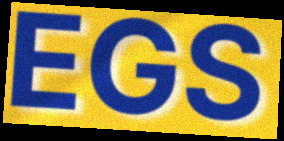
EGS